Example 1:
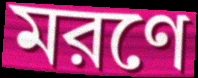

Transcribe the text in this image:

মরণে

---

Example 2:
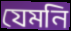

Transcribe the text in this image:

যেমনি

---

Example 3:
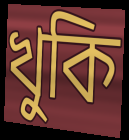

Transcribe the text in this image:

খুকি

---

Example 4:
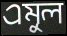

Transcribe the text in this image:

এমুল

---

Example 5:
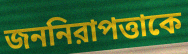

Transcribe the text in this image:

জননিরাপত্তাকে